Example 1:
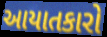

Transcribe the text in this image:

આયાતકારો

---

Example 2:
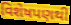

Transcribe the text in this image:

વિશેષપણથી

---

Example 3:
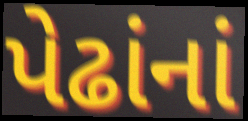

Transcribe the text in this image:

પેઢાંનાં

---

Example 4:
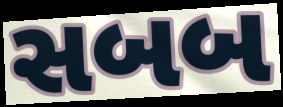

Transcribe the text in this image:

સબબ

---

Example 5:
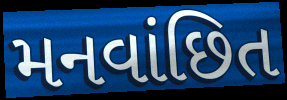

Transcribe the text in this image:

મનવાંછિત